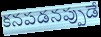
కనపడనప్పుడే